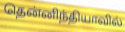
தென்னிந்தியாவில்